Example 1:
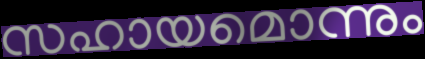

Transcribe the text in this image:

സഹായമൊന്നും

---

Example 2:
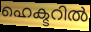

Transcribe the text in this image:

ഹെക്ടറിൽ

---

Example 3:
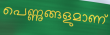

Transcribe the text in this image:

പെണ്ണുങ്ങളുമാണ്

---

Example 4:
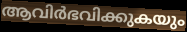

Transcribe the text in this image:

ആവിർഭവിക്കുകയും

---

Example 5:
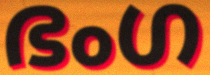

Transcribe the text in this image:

ഭംഗ